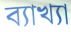
ব্যাখ্যা